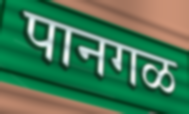
पानगळ